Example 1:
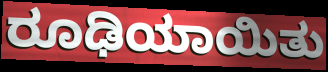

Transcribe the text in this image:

ರೂಢಿಯಾಯಿತು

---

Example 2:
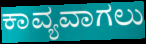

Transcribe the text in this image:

ಕಾವ್ಯವಾಗಲು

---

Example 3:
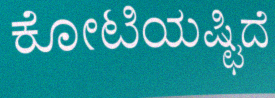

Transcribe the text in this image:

ಕೋಟಿಯಷ್ಟಿದೆ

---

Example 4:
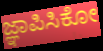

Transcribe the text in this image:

ಜ್ಞಾಪಿಸಿಕೋ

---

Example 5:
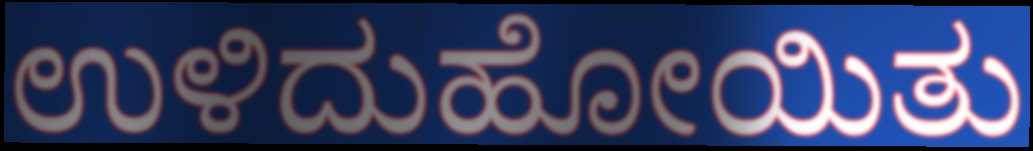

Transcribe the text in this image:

ಉಳಿದುಹೋಯಿತು